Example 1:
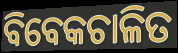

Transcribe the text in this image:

ବିବେକଚାଳିତ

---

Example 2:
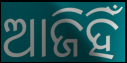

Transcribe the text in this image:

ଆଜିହିଁ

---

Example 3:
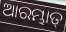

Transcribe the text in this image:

ଆରମ୍ଭାତ୍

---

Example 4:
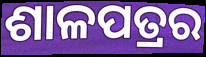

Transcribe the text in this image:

ଶାଳପତ୍ରର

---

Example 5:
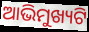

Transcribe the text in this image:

ଆଭିମୁଖ୍ୟଟି